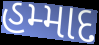
હમ્માદ